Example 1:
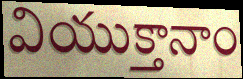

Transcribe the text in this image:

వియుక్తానాం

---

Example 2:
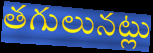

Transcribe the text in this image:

తగులునట్లు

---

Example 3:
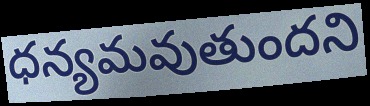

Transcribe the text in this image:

ధన్యమవుతుందని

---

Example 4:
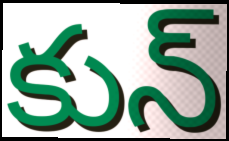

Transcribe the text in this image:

కున్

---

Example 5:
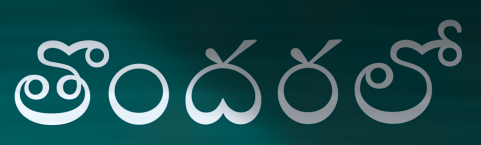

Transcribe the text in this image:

తొందరలో